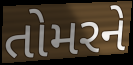
તોમરને